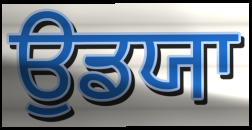
ਉਡਯਾ